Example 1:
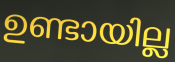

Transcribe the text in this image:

ഉണ്ടായില്ല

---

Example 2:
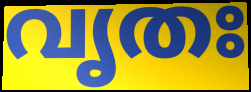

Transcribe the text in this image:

വൃതഃ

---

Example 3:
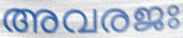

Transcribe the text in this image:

അവരജഃ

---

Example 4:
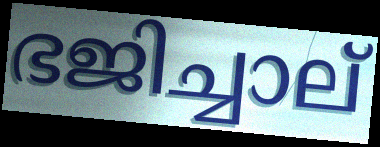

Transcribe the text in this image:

ഭജിച്ചാല്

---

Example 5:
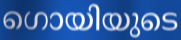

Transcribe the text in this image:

ഗൊയിയുടെ